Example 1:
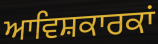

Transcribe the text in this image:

ਆਵਿਸ਼ਕਾਰਕਾਂ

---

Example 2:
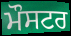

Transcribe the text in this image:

ਮੌਸਟਰ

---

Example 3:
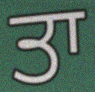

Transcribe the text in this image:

ਤਾ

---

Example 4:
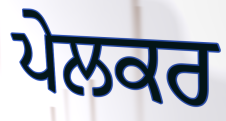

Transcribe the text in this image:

ਪੇਲਕਰ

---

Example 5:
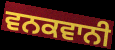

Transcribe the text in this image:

ਵਨਕਵਾਨੀ